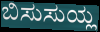
ಬಿಸುಸುಯ್ಲ